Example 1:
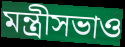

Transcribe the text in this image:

মন্ত্রীসভাও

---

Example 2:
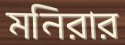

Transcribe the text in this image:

মনিরার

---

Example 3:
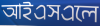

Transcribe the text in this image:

আইএসএলে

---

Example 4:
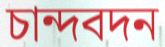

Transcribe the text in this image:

চান্দবদন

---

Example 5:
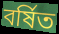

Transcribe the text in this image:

বর্ষিত